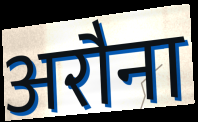
अरौना